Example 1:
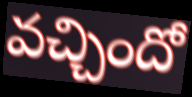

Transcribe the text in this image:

వచ్చిందో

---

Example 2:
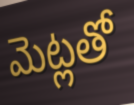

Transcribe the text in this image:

మెట్లతో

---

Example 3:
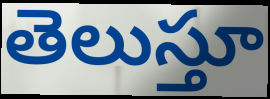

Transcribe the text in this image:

తెలుస్తూ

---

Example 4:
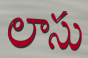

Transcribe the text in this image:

లాసు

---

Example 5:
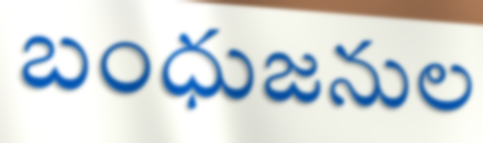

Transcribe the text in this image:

బంధుజనుల